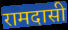
रामदासी